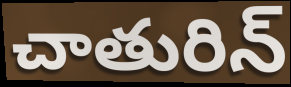
చాతురిన్